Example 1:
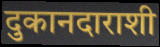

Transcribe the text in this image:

दुकानदाराशी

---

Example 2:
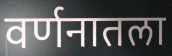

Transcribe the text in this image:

वर्णनातला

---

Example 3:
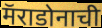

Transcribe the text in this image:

मॅराडोनाची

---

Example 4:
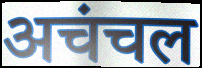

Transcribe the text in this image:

अचंचल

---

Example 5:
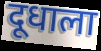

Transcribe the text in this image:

दूधाला